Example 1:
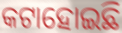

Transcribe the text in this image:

କଟାହୋଇଛି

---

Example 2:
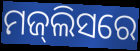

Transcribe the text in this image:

ମଜ୍‌ଲିସରେ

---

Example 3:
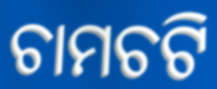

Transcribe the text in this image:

ଚାମଚଟି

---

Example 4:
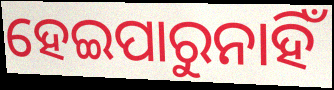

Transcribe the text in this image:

ହେଇପାରୁନାହିଁ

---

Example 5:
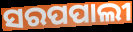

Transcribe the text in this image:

ସରପପାଲୀ